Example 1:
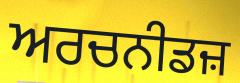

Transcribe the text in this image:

ਅਰਚਨੀਡਜ਼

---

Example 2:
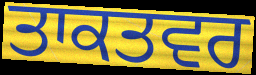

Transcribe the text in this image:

ਤਾਕਤਵਰ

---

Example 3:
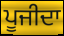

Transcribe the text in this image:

ਪੂਜੀਦਾ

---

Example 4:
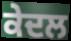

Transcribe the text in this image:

ਕੇਦਲ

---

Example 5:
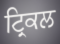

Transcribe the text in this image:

ਟ੍ਰਿਕਲ